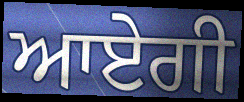
ਆਏਗੀ